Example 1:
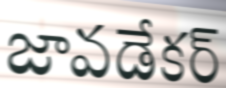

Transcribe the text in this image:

జావడేకర్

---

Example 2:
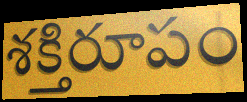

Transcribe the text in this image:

శక్తిరూపం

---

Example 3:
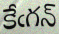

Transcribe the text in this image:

కేఁగన్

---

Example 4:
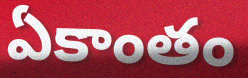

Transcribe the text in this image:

ఏకాంతం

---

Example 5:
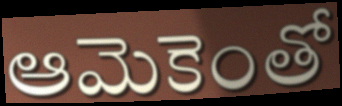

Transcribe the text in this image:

ఆమెకెంతో